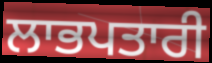
ਲਾਭਪਤਾਰੀ